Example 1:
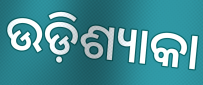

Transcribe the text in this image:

ଉଡ଼ିଶ୍ୟାକା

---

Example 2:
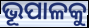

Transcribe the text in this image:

ଭୂପାଳକୁ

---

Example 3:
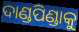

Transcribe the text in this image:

ଦାଣ୍ଡପିଣ୍ଡାକୁ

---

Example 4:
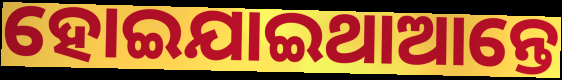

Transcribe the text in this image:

ହୋଇଯାଇଥାଆନ୍ତେ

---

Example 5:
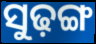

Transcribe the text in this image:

ସୁଢ଼ଙ୍ଗ